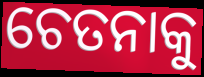
ଚେତନାକୁ